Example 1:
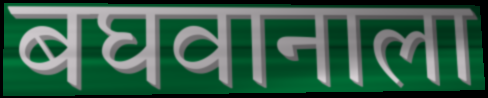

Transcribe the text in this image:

बघवानाला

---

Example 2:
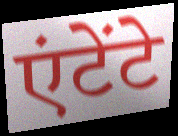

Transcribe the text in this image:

एंटेंटे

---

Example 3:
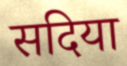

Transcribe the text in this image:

सदिया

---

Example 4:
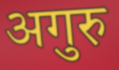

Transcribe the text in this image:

अगुरु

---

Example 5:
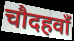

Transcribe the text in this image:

चौदहवाँ